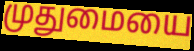
முதுமையை